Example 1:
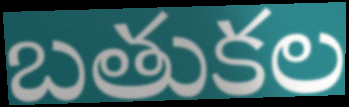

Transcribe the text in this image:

బతుకల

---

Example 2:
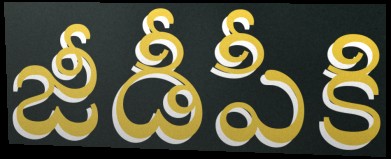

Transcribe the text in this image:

జీడీపీకి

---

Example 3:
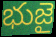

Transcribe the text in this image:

భుజై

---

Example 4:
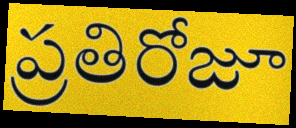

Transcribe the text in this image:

ప్రతిరోజూ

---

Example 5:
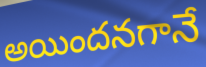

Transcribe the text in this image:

అయిందనగానే